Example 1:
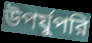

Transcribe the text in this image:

উপর্যুপরি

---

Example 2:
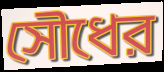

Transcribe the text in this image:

সৌধের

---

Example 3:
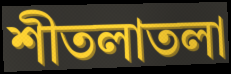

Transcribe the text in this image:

শীতলাতলা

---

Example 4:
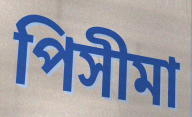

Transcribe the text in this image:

পিসীমা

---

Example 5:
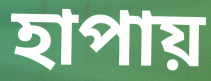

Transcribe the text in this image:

হাপায়